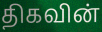
திகவின்